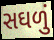
સઘળું